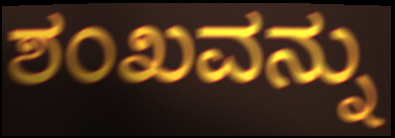
ಶಂಖವನ್ನು